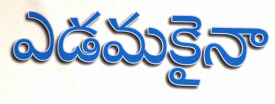
ఎడమకైనా